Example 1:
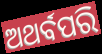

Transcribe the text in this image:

ଅଥର୍ବପରି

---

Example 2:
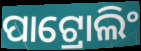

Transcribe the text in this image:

ପାଟ୍ରୋଲିଂ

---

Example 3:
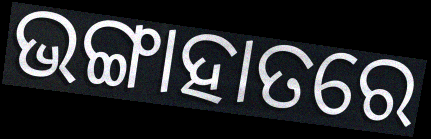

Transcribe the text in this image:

ଭଙ୍ଗାହାତରେ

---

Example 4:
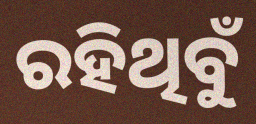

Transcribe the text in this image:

ରହିଥିବୁଁ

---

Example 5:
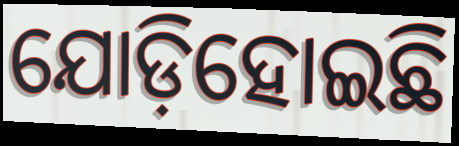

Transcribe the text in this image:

ଯୋଡ଼ିହୋଇଛି